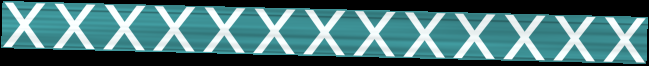
xxxxxxxxxxxxx